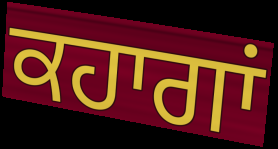
ਕਹਾਗਾਂ